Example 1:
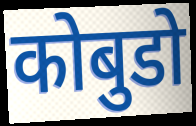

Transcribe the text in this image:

कोबुडो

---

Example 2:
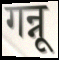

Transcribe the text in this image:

गन्नू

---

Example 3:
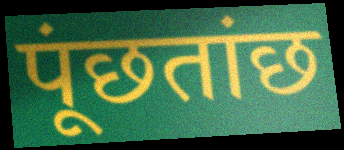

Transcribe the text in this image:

पूंछतांछ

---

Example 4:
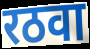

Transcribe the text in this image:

रठवा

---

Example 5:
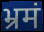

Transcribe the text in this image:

भ्रमं